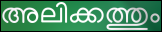
അലിക്കത്തും